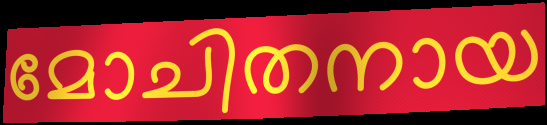
മോചിതനായ